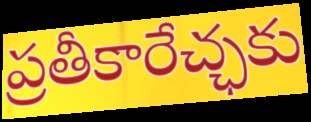
ప్రతీకారేచ్ఛకు